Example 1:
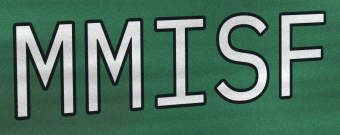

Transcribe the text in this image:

MMISF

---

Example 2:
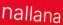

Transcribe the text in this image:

nallana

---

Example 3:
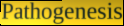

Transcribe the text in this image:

Pathogenesis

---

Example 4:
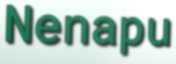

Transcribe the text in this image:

Nenapu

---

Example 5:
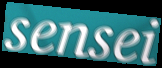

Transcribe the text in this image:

sensei